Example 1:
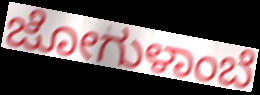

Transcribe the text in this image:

ಜೋಗುಳಾಂಬೆ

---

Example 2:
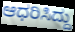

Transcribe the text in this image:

ಆಧರಿಸಿದ್ದು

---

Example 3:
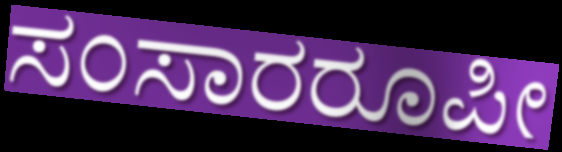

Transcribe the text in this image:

ಸಂಸಾರರೂಪೀ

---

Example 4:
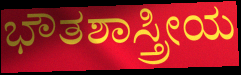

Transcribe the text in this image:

ಭೌತಶಾಸ್ತ್ರೀಯ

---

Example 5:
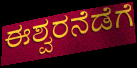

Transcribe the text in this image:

ಈಶ್ವರನೆಡೆಗೆ